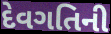
દેવગતિની